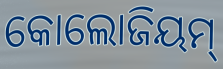
କୋଲୋଜିୟମ୍